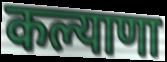
कल्याणा